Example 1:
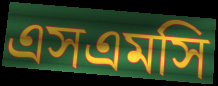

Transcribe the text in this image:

এসএমসি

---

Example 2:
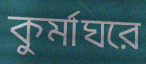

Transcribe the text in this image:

কুর্মাঘরে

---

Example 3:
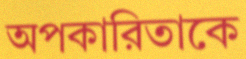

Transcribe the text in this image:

অপকারিতাকে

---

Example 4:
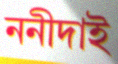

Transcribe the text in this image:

ননীদাই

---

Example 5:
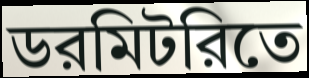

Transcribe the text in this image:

ডরমিটরিতে